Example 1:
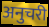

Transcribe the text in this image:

अनुचरी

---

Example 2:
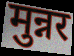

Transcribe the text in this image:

मुन्नर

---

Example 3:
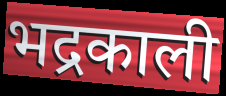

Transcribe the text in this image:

भद्रकाली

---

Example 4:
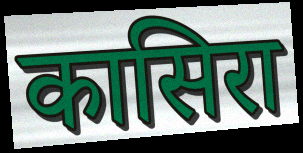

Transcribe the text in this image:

कासिरा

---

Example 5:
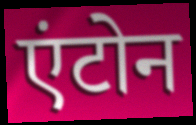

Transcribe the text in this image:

एंटोन